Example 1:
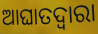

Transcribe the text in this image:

ଆଘାତଦ୍ୱାରା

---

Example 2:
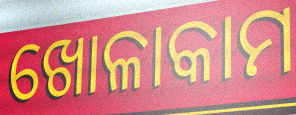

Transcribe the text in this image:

ଖୋଳାକାମ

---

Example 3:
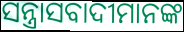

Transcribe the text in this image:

ସନ୍ତ୍ରାସବାଦୀମାନଙ୍କ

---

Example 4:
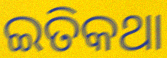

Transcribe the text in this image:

ଇତିକଥା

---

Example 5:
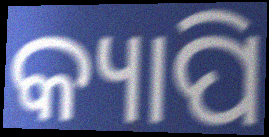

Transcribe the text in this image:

କ୍ୟାପି